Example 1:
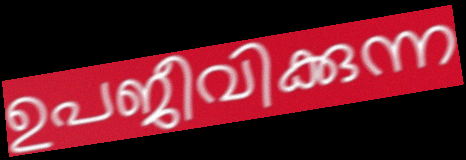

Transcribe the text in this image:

ഉപജീവിക്കുന്ന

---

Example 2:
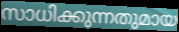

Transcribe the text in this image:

സാധിക്കുന്നതുമായ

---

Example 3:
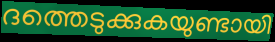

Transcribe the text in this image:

ദത്തെടുക്കുകയുണ്ടായി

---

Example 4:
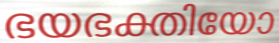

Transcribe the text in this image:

ഭയഭക്തിയോ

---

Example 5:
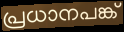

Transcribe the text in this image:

പ്രധാനപങ്ക്